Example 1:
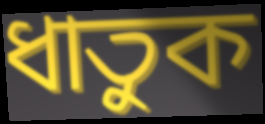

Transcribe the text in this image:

ধাতুক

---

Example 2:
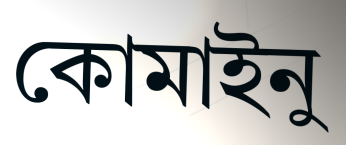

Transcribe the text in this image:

কোমাইনু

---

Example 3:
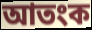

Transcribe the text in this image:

আতংক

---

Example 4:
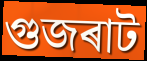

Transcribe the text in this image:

গুজৰাট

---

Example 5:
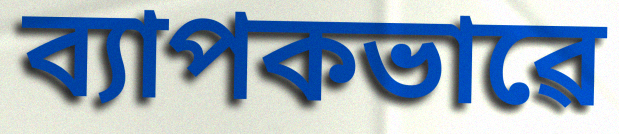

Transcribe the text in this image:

ব্যাপকভাৱে